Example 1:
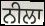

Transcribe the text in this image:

ਨੀਲਾ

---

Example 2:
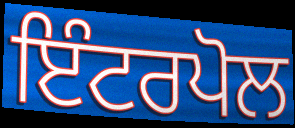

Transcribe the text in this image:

ਇੰਟਰਪੋਲ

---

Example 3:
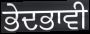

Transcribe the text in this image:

ਭੇਦਭਾਵੀ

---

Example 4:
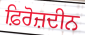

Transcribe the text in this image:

ਫ਼ਿਰੋਜ਼ਦੀਨ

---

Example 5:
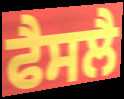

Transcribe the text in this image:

ਫੈਸਲੈ